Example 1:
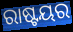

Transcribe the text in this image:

ରାଷ୍ଟୟର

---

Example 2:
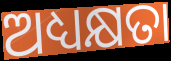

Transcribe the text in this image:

ଅଧ୍ୟକ୍ଷତା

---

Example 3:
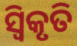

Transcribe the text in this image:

ସ୍ଵିକୃତି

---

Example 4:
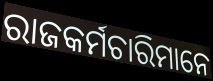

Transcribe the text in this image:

ରାଜକର୍ମଚାରିମାନେ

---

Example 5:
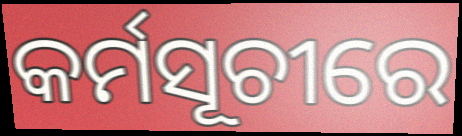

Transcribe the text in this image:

କର୍ମସୂଚୀରେ